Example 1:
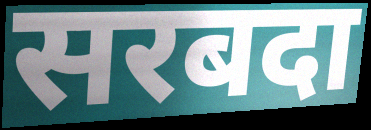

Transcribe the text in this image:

सरबदा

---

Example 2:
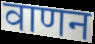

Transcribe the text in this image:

वाणन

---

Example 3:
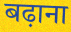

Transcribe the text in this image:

बढ़ाना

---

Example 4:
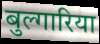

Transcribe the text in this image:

बुल्गारिया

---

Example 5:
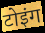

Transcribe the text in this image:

टोइंग